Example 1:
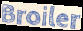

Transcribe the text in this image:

Broiler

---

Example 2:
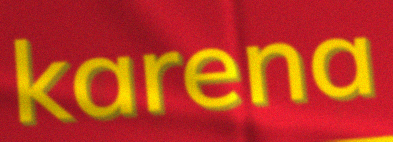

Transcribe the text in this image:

karena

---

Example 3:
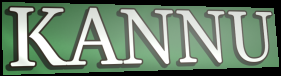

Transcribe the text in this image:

KANNU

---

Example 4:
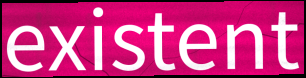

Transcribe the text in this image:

existent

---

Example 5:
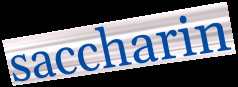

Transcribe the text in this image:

saccharin